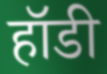
हॉडी